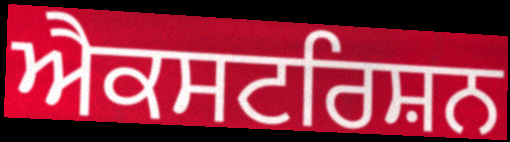
ਐਕਸਟਰਿਸ਼ਨ